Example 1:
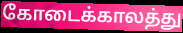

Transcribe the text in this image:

கோடைக்காலத்து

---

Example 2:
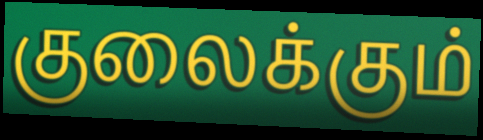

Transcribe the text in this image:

குலைக்கும்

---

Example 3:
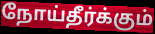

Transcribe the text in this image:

நோய்தீர்க்கும்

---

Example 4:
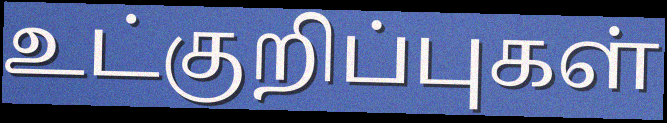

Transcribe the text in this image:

உட்குறிப்புகள்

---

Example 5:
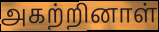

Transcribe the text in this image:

அகற்றினாள்